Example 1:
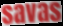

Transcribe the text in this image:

savas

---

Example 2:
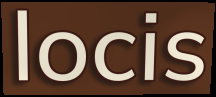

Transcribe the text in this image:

locis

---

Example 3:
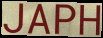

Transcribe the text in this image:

JAPH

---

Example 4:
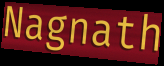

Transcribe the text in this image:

Nagnath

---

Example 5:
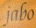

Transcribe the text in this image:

jabo